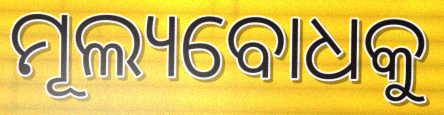
ମୂଲ୍ୟବୋଧକୁ